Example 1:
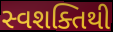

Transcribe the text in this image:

સ્વશક્તિથી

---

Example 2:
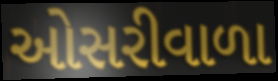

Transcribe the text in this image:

ઓસરીવાળા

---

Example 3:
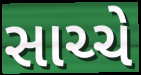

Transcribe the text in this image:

સાચ્ચે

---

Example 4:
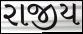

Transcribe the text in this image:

રાજીય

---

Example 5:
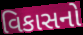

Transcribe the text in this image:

વિકાસનો